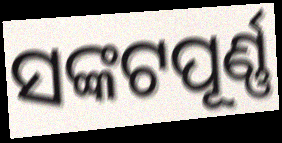
ସଙ୍କଟପୂର୍ଣ୍ଣ